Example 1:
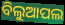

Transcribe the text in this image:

ବିଲୁଆପଲ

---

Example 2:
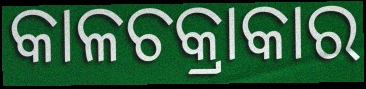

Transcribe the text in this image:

କାଳଚକ୍ରାକାର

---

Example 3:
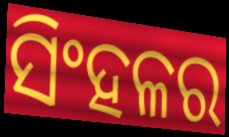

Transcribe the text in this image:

ସିଂହଳର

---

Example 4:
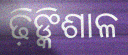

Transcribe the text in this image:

ଢ଼ିଙ୍କିଶାଳ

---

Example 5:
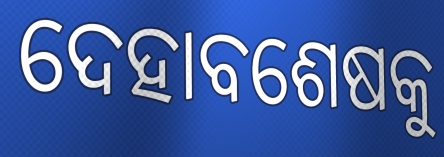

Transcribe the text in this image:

ଦେହାବଶେଷକୁ